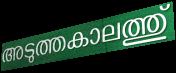
അടുത്തകാലത്തു്